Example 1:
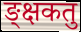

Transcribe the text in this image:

ङ्क्षकतु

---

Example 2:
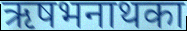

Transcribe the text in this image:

ऋषभनाथका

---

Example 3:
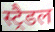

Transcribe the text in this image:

स्ट्रैडल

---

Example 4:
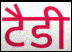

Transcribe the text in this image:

टैडी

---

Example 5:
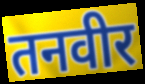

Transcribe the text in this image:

तनवीर